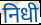
निधी